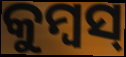
କୁମ୍ବସ୍